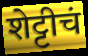
शेट्टीचं